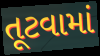
તૂટવામાં